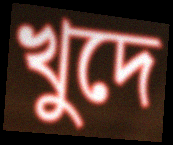
খুদে